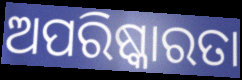
ଅପରିଷ୍କାରତା